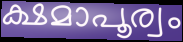
ക്ഷമാപൂര്വം